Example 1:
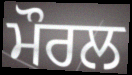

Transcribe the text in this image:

ਮੌਰਲ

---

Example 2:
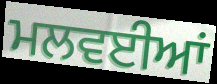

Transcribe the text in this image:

ਮਲਵਈਆਂ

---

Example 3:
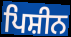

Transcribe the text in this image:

ਪਿਸ਼ੀਨ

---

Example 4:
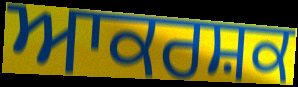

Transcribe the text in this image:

ਆਕਰਸ਼ਕ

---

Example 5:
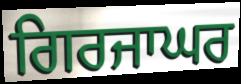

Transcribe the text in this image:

ਗਿਰਜਾਘਰ